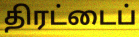
திரட்டைப்